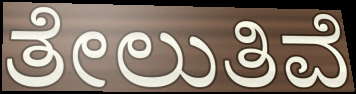
ತೇಲುತಿವೆ